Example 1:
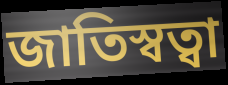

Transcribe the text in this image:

জাতিস্বত্বা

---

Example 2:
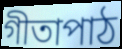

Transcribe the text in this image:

গীতাপাঠ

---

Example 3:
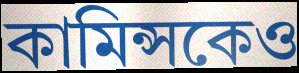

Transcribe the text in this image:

কামিন্সকেও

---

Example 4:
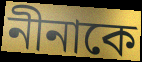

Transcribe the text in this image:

নীনাকে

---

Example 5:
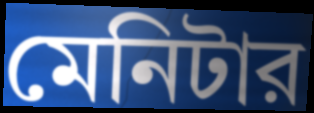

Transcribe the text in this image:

মেনিটার